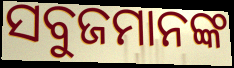
ସବୁଜମାନଙ୍କ